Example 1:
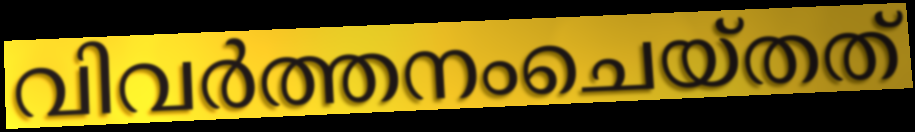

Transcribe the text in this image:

വിവർത്തനംചെയ്തത്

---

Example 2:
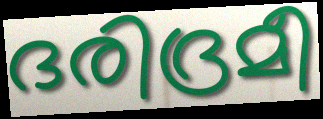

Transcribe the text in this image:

ദരിദ്രമീ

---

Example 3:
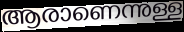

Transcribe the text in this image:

ആരാണെന്നുള്ള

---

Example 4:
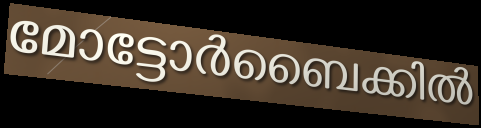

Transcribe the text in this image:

മോട്ടോർബൈക്കിൽ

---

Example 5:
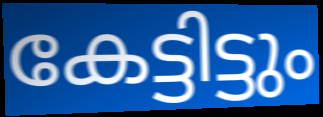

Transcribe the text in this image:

കേട്ടിട്ടും